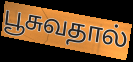
பூசுவதால்